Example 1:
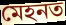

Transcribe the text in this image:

মেহনত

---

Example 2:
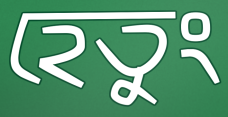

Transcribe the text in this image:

হেতুং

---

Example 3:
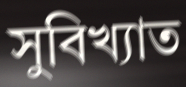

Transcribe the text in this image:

সুবিখ্যাত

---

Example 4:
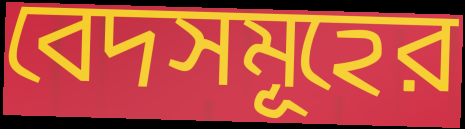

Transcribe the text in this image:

বেদসমূহের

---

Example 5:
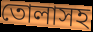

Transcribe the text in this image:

তোলাসহ